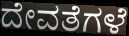
ದೇವತೆಗಳೆ